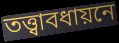
তত্ত্বাবধায়নে